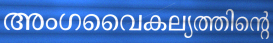
അംഗവൈകല്യത്തിന്റെ